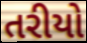
તરીયો